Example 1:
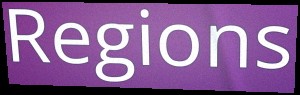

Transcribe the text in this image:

Regions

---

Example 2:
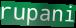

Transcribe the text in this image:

rupani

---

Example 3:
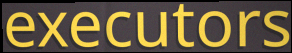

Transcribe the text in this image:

executors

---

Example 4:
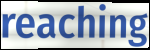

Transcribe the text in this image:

reaching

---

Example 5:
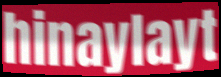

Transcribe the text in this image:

hinaylayt